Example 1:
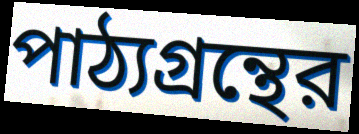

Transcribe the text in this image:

পাঠ্যগ্রন্থের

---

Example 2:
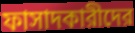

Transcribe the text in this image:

ফাসাদকারীদের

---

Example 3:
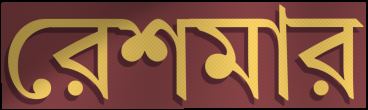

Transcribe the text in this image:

রেশমার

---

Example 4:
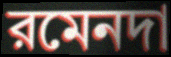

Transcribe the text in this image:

রমেনদা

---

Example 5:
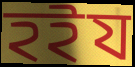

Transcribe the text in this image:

হইয